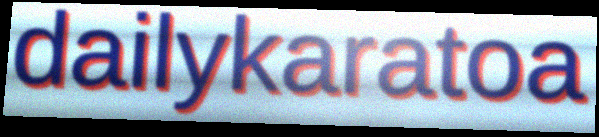
dailykaratoa